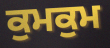
ਕੁਮਕੁਮ